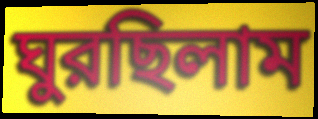
ঘুরছিলাম